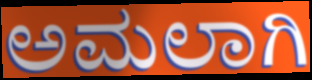
ಅಮಲಾಗಿ